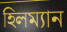
হিলম্যান